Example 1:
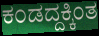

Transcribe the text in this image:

ಕಂಡದ್ದಕ್ಕಿಂತ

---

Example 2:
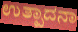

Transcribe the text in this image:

ಉತ್ಪಾದನಾ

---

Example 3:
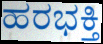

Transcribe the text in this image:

ಹರಭಕ್ತಿ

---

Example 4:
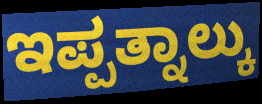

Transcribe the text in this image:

ಇಪ್ಪತ್ನಾಲ್ಕು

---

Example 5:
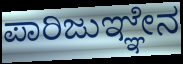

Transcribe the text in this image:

ಪಾರಿಜುಞ್ಞೇನ